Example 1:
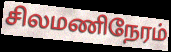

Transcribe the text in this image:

சிலமணிநேரம்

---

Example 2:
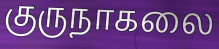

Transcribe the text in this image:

குருநாகலை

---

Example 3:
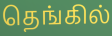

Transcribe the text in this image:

தெங்கில்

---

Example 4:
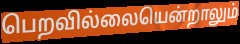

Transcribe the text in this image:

பெறவில்லையென்றாலும்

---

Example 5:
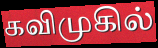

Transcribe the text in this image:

கவிமுகில்